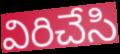
విరిచేసి